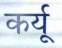
कर्यू